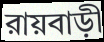
রায়বাড়ী